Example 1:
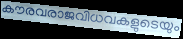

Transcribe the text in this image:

കൗരവരാജവിധവകളുടെയും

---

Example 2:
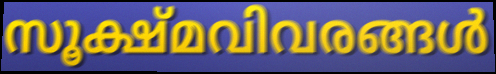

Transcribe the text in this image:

സൂക്ഷ്മവിവരങ്ങൾ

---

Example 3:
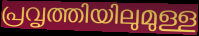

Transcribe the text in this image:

പ്രവൃത്തിയിലുമുള്ള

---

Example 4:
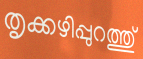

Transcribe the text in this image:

തൃക്കഴിപ്പുറത്തു്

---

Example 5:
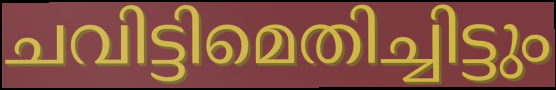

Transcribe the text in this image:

ചവിട്ടിമെതിച്ചിട്ടും